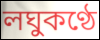
লঘুকণ্ঠে